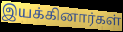
இயக்கினார்கள்